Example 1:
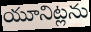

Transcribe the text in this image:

యూనిట్లను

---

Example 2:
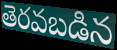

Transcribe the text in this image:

తెరవబడిన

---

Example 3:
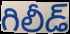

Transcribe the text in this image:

గిలీడ్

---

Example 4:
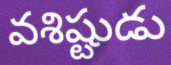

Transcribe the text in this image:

వశిష్టుడు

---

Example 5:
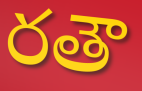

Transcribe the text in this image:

రతౌ